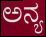
ಅನ್ಯ